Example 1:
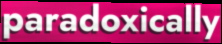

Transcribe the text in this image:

paradoxically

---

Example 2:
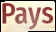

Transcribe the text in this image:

Pays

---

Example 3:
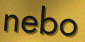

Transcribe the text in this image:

nebo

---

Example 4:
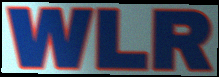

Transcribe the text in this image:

WLR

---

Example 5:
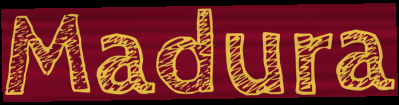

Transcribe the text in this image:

Madura